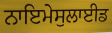
ਨਾਇਮੇਸੁਲਾਈਡ